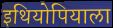
इथियोपियाला